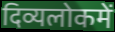
दिव्यलोकमें